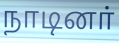
நாடினர்